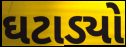
ઘટાડ્યો